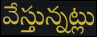
వేస్తున్నట్లు